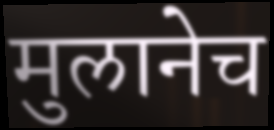
मुलानेच